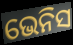
ଭେନିସ